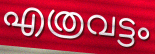
എത്രവട്ടം